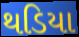
થડિયા